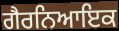
ਗੈਰਨਿਆਇਕ